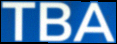
TBA